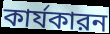
কার্যকারন